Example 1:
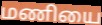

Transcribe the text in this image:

மணியை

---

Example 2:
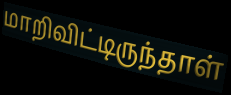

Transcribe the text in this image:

மாறிவிட்டிருந்தாள்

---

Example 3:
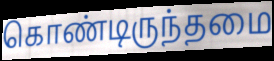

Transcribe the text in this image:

கொண்டிருந்தமை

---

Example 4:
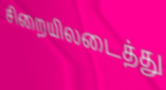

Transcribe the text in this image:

சிறையிலடைத்து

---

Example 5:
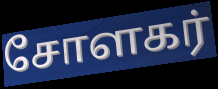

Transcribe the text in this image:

சோளகர்